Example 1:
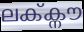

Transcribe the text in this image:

ലക്ക്നൗ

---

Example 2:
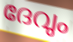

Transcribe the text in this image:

ദേവും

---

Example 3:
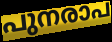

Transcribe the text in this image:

പുനരാപ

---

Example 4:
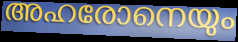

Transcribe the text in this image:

അഹരോനെയും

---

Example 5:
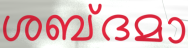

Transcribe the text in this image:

ശബ്ദമാ